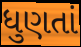
ધુણતાં